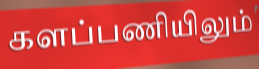
களப்பணியிலும்